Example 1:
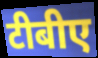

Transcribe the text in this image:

टीबीए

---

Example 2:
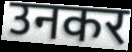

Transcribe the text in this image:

उनकर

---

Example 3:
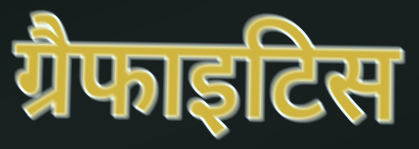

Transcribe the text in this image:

ग्रैफाइटिस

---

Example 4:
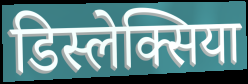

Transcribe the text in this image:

डिस्लेक्सिया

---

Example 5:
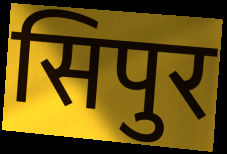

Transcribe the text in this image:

सिपुर